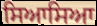
ਸਿਆਸਿਆ